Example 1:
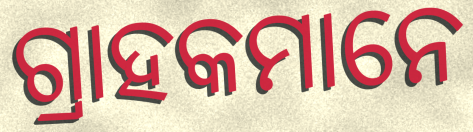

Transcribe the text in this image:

ଗ୍ରାହକମାନେ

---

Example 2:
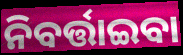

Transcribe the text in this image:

ନିବର୍ତ୍ତାଇବା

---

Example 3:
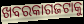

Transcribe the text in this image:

ଖବରକାଗଜଟାକୁ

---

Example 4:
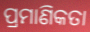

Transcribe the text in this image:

ପ୍ରମାଣିକତା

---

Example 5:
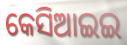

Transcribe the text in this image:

କେସିଆଇଇ